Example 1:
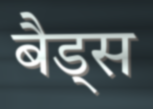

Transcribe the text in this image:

बैड्स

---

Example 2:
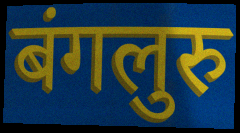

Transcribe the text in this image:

बंगलुरु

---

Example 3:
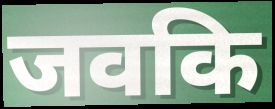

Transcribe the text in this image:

जवकि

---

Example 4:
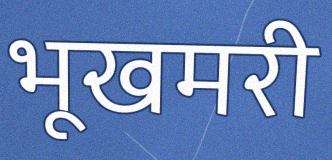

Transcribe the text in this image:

भूखमरी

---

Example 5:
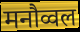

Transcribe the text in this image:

मनौव्वल